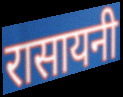
रासायनी